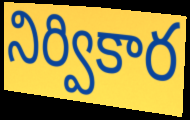
నిర్వికార